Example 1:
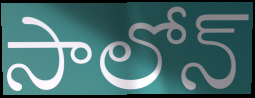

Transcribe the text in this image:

సాలోన్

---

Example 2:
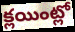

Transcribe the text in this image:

క్లయింట్లో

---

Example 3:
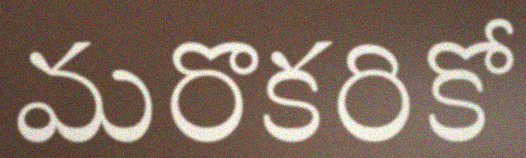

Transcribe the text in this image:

మరొకరికో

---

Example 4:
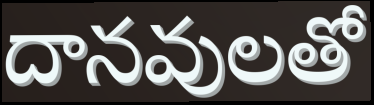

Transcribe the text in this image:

దానవులతో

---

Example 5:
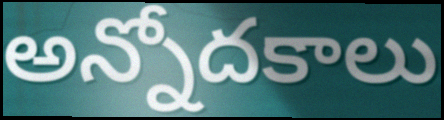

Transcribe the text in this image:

అన్నోదకాలు